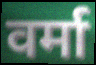
वर्मा